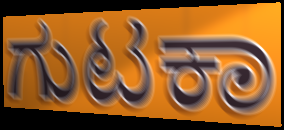
ಗುಟಕಾ